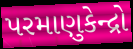
પરમાણુકેન્દ્રો